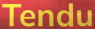
Tendu